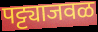
पट्ट्याजवळ